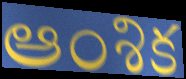
ఆంశిక